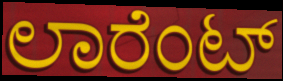
ಲಾರೆಂಟ್